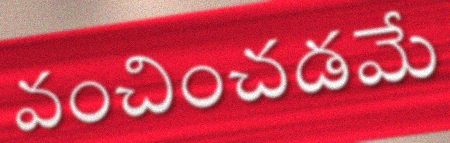
వంచించడమే